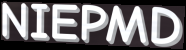
NIEPMD